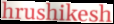
hrushikesh